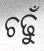
ଚଢୁଁ